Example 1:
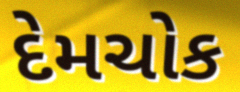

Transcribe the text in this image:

દેમચોક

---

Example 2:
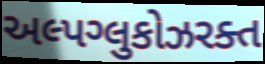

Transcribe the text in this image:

અલ્પગ્લુકોઝરક્ત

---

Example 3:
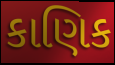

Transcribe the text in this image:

કાણિક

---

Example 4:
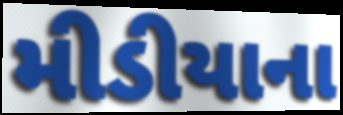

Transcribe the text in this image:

મીડીયાના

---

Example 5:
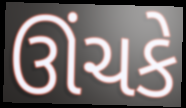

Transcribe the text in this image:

ઊંચકે